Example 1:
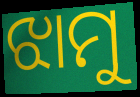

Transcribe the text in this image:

ଝାମୁ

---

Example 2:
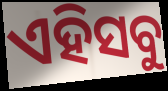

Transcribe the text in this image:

ଏହିସବୁ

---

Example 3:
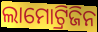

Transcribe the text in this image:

ଲାମୋଟ୍ରିଜିନ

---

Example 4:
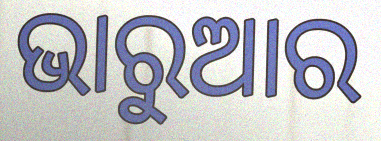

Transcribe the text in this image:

ଭାରୁଆର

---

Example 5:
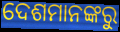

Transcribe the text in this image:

ଦେଶମାନଙ୍କରୁ